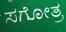
ಸಗೋತ್ರ